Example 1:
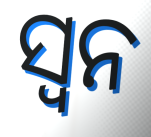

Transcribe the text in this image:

ସ୍ୱନ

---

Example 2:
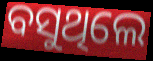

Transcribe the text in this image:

ବସୁଥିଲେ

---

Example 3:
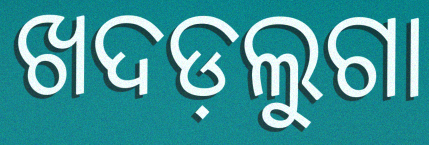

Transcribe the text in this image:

ଖଦଡ଼ଲୁଗା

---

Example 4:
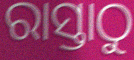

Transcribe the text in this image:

ରାସ୍ତାଠୁ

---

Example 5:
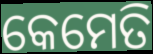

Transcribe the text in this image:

କେମେତି